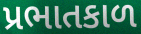
પ્રભાતકાળ